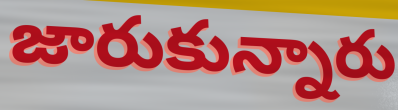
జారుకున్నారు